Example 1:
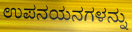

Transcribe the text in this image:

ಉಪನಯನಗಳನ್ನು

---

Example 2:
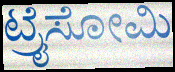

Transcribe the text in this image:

ಟ್ರೈಸೋಮಿ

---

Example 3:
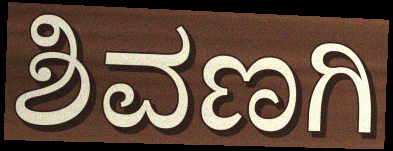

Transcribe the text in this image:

ಶಿವಣಗಿ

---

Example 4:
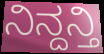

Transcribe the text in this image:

ನಿನ್ದನ್ತಿ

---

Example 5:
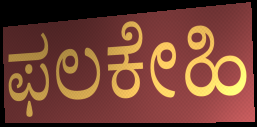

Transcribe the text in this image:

ಫಲಕೇಹಿ